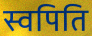
स्वपिति